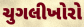
ચુગલીખોરો